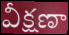
వీక్షణా